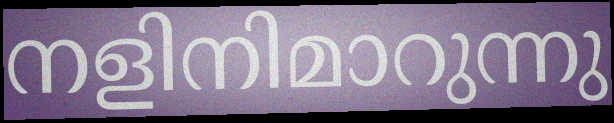
നളിനിമാറുന്നു